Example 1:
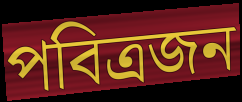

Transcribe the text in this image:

পবিত্রজন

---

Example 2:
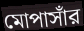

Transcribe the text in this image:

মোপাসাঁর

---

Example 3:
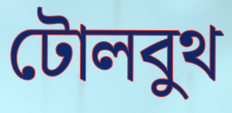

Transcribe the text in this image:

টোলবুথ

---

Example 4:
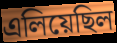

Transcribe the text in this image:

এলিয়েছিল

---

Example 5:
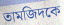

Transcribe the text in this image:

তামজিদকে